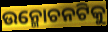
ଉନ୍ମୋଚନଟିକୁ